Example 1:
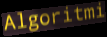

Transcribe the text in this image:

Algoritmi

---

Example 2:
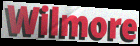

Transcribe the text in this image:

Wilmore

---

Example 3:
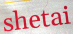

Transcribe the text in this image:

shetai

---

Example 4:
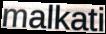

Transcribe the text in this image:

malkati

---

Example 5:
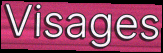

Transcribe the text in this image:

Visages